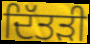
ਦਿੱਤੜੀ